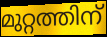
മുറ്റത്തിന്